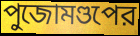
পুজোমণ্ডপের